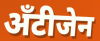
अँटीजेन